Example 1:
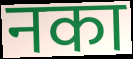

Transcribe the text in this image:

नका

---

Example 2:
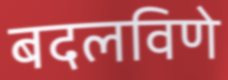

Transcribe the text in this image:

बदलविणे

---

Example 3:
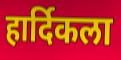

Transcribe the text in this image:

हार्दिकला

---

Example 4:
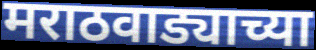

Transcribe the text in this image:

मराठवाड्याच्या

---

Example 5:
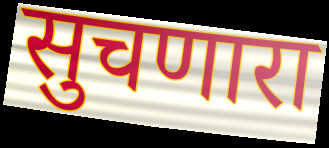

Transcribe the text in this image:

सुचणारा